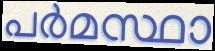
പർമസ്ഥാ